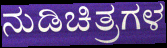
ನುಡಿಚಿತ್ರಗಳ